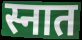
स्नात